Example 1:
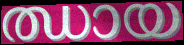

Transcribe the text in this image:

ഝായ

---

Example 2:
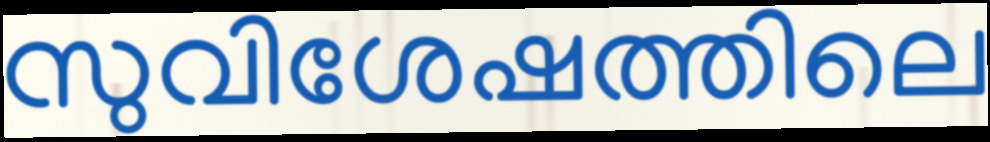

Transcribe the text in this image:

സുവിശേഷത്തിലെ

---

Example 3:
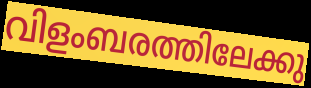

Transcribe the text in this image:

വിളംബരത്തിലേക്കു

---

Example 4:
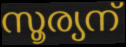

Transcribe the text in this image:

സൂര്യന്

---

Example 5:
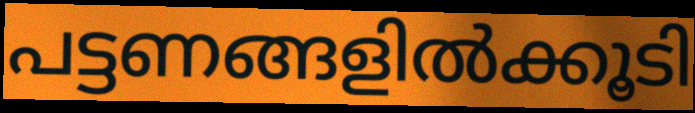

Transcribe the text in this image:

പട്ടണങ്ങളിൽക്കൂടി